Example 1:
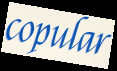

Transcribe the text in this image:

copular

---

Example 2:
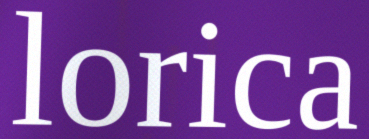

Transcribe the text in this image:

lorica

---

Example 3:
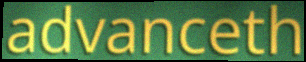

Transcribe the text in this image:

advanceth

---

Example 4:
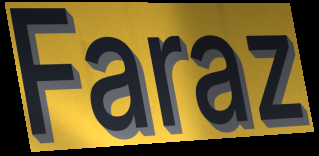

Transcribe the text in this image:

Faraz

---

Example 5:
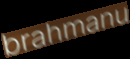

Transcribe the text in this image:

brahmanu